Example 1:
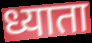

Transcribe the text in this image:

ध्याता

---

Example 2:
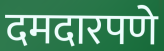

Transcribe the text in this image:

दमदारपणे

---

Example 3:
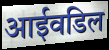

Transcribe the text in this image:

आईवडिल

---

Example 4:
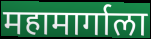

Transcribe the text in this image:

महामार्गाला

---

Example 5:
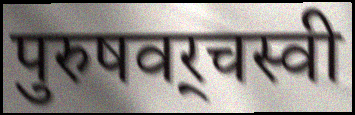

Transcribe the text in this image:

पुरुषवर्चस्वी